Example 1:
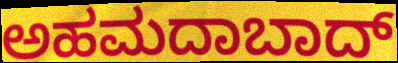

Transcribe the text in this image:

ಅಹಮದಾಬಾದ್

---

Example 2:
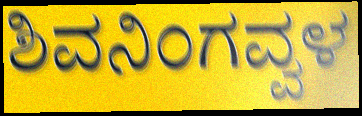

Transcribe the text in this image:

ಶಿವನಿಂಗವ್ವಳ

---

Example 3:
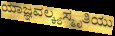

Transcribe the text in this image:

ಯಾಜ್ಞವಲ್ಕ್ಯಸ್ಮೃತಿಯು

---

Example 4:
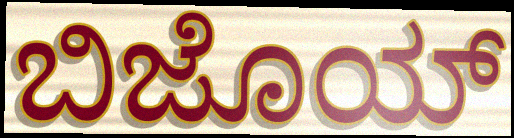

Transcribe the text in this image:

ಬಿಜೊಯ್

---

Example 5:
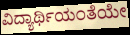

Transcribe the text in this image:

ವಿದ್ಯಾರ್ಥಿಯಂತೆಯೇ